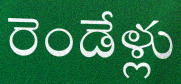
రెండేళ్లు